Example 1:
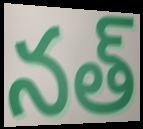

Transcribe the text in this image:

నత్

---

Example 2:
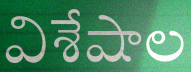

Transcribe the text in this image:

విశేషాల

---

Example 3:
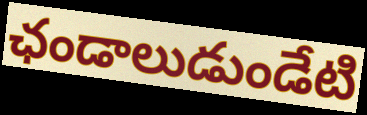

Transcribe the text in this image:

ఛండాలుడుండేటి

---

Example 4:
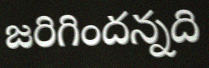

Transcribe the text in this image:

జరిగిందన్నది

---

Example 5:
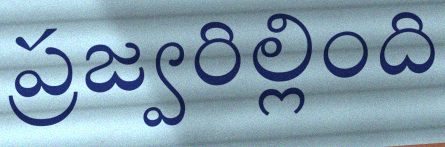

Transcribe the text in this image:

ప్రజ్వరిల్లింది